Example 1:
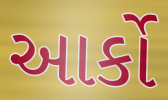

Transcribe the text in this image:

આર્કો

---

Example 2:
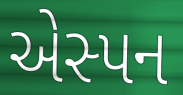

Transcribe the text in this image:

એસ્પન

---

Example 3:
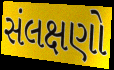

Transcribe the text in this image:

સંલક્ષણો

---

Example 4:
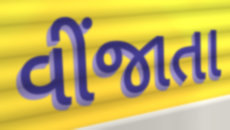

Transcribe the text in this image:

વીંજાતા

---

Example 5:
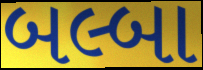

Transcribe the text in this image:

બલ્બા